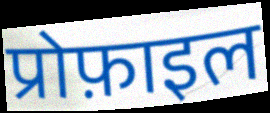
प्रोफ़ाइल